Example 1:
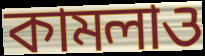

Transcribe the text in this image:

কামলাও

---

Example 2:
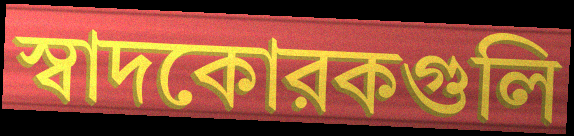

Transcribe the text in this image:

স্বাদকোরকগুলি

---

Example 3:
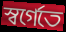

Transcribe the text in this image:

স্বর্গেতে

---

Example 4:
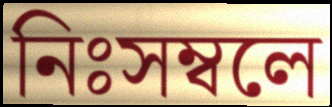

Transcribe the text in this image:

নিঃসম্বলে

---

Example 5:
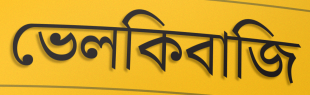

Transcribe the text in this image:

ভেলকিবাজি